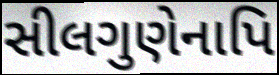
સીલગુણેનાપિ